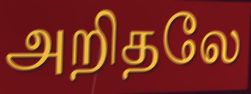
அறிதலே